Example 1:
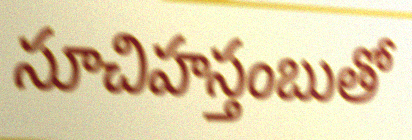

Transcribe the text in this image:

సూచిహస్తంబుతో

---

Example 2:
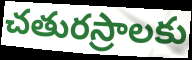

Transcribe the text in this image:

చతురస్రాలకు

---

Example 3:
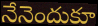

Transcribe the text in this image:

నేనెందుకూ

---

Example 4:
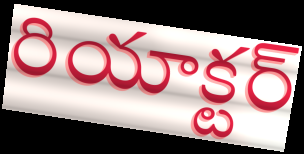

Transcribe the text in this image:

రియాక్టర్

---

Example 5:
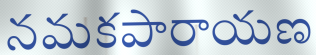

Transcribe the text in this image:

నమకపారాయణ